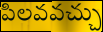
పిలవవచ్చు